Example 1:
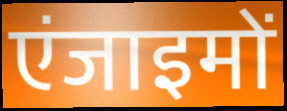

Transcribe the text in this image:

एंजाइमों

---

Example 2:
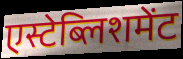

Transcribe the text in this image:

एस्टेब्लिशमेंट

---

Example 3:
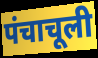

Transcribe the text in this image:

पंचाचूली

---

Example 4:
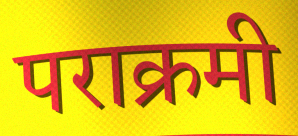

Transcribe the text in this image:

पराक्रमी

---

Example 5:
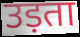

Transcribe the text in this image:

उड़ता